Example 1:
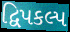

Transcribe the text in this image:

દ્વિપકલ્પ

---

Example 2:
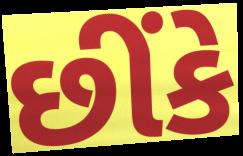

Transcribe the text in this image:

છીંકે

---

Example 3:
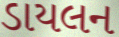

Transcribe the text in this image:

ડાયલન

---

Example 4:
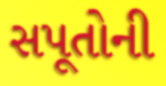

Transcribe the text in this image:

સપૂતોની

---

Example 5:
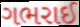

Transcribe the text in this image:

ગભરાઈ